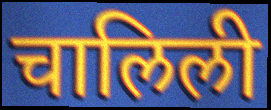
चालिली